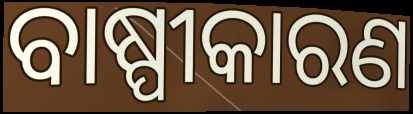
ବାଷ୍ପୀକାରଣ